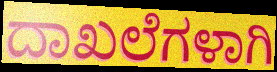
ದಾಖಲೆಗಳಾಗಿ